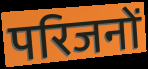
परिजनों